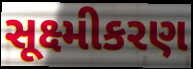
સૂક્ષ્મીકરણ